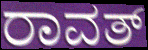
ರಾವತ್